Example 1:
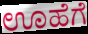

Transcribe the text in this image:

ಊಹೆಗೆ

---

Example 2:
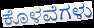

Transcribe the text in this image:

ಕೊಳವೆಗಳು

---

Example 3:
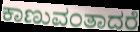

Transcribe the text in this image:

ಕಾಣುವಂತಾದರೆ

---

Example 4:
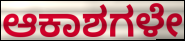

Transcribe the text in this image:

ಆಕಾಶಗಳೇ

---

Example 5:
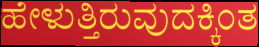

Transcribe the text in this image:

ಹೇಳುತ್ತಿರುವುದಕ್ಕಿಂತ